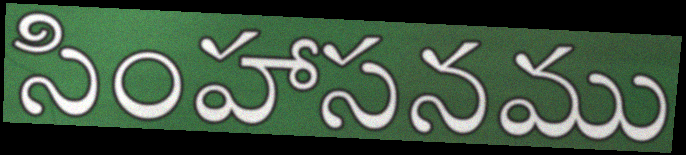
సింహాసనము